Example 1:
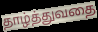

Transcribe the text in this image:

தாழ்த்துவதை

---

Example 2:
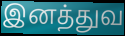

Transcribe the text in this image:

இனத்துவ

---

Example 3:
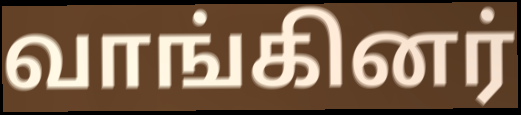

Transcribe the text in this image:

வாங்கினர்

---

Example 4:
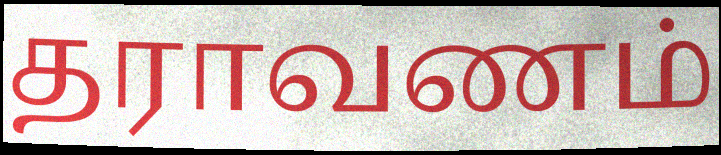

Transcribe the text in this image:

தராவணம்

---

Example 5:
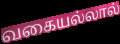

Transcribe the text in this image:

வகையல்லால்